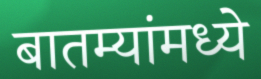
बातम्यांमध्ये